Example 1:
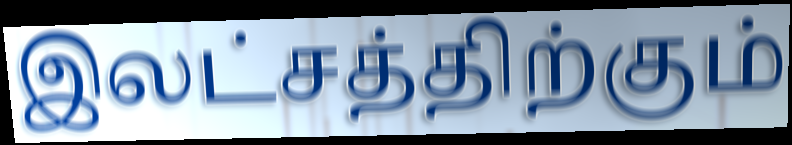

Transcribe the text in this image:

இலட்சத்திற்கும்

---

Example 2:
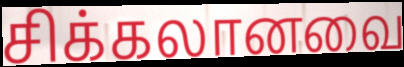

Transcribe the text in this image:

சிக்கலானவை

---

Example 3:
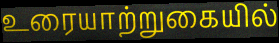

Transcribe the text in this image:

உரையாற்றுகையில்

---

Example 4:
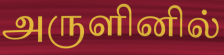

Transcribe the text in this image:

அருளினில்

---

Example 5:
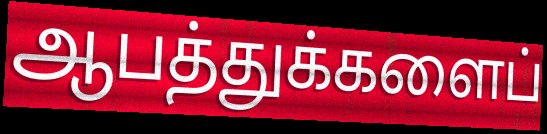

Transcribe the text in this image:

ஆபத்துக்களைப்